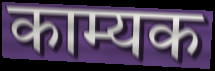
काम्यक